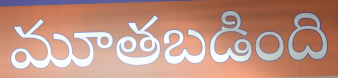
మూతబడింది